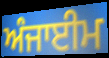
ਅੰਜਾਈਮ